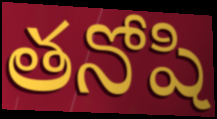
తనోషి